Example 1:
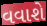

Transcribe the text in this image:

વવાશે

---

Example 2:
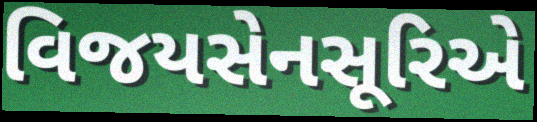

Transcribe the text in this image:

વિજયસેનસૂરિએ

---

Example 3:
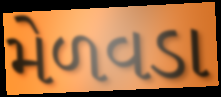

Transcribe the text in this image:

મેળવડા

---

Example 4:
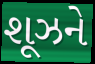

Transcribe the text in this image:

શૂઝને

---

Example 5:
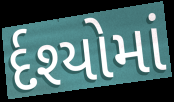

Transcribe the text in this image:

ર્દશ્યોમાં